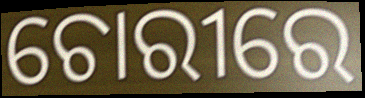
ଚୋରୀରେ